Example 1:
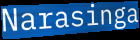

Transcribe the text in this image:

Narasinga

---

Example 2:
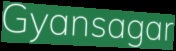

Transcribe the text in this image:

Gyansagar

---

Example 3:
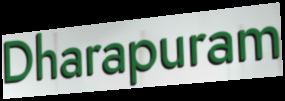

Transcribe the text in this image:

Dharapuram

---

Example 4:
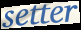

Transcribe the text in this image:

setter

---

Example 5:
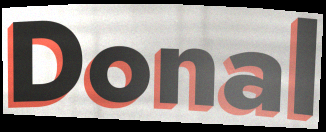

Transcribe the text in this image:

Donal